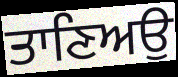
ਤਾਣਿਅਉ